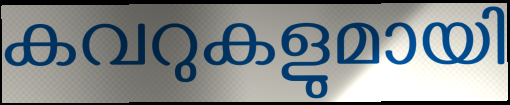
കവറുകളുമായി